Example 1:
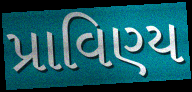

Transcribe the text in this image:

પ્રાવિણ્ય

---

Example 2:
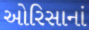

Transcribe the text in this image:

ઓરિસાનાં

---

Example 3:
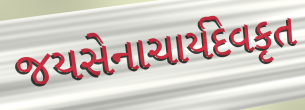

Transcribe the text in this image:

જયસેનાચાર્યદેવકૃત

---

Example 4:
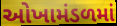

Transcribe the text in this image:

ઓખામંડળમાં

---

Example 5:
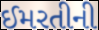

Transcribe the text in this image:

ઈમરતીની